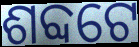
ଶବ୍ଦଟେ